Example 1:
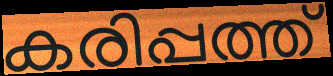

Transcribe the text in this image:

കരിപ്പത്ത്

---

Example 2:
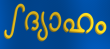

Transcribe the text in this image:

ഽദ്യാഹം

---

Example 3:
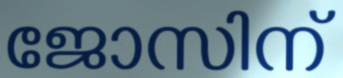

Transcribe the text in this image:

ജോസിന്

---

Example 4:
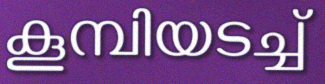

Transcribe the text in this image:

കൂമ്പിയടച്ച്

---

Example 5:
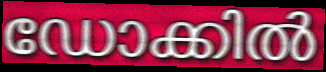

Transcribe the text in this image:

ഡോക്കിൽ